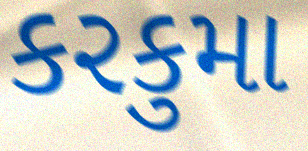
કરકુમા